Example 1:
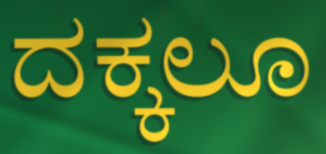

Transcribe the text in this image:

ದಕ್ಕಲೂ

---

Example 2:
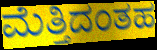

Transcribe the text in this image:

ಮೆತ್ತಿದಂತಹ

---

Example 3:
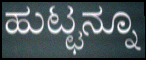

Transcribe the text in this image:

ಹುಟ್ಟನ್ನೂ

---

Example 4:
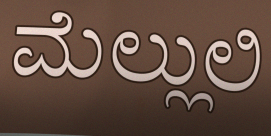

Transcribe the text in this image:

ಮೆಲ್ಲುಲಿ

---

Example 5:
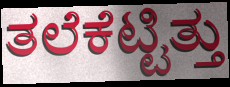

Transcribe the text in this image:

ತಲೆಕೆಟ್ಟಿತ್ತು